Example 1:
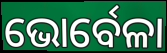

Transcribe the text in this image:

ଭୋର୍ବେଳା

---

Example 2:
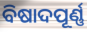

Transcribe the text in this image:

ବିଷାଦପୂର୍ଣ୍ଣ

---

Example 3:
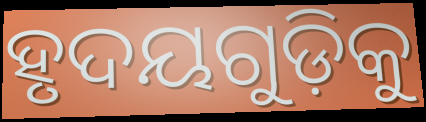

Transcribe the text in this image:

ହୃଦୟଗୁଡ଼ିକୁ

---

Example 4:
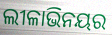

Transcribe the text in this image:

ଲୀଳାଭିନୟର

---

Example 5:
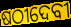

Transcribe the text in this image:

ଷଠୀଦେବୀ